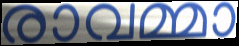
രാവമ്മാ